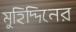
মুহিদ্দিনের